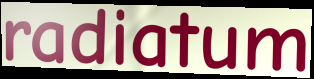
radiatum